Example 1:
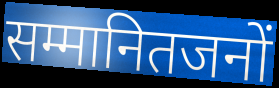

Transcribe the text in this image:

सम्मानितजनों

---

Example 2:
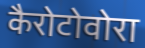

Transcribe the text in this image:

कैरोटोवोरा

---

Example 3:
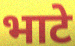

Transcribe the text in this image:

भाटे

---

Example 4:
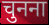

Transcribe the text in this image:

चुनना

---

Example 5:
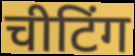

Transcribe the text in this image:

चीटिंग